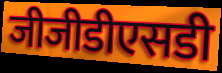
जीजीडीएसडी